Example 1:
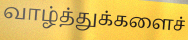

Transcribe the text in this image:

வாழ்த்துக்களைச்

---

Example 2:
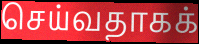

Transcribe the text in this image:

செய்வதாகக்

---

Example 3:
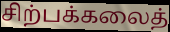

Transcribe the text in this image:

சிற்பக்கலைத்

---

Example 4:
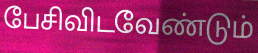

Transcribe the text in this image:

பேசிவிடவேண்டும்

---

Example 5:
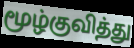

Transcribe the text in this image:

மூழ்குவித்து